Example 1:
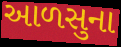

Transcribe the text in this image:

આળસુના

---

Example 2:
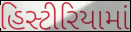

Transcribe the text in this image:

હિસ્ટીરિયામાં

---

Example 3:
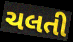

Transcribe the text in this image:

ચલતી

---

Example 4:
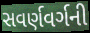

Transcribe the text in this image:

સવર્ણવર્ગની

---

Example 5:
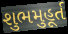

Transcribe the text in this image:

શુભમુહૂર્ત